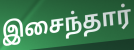
இசைந்தார்